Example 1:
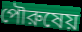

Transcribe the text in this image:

পৌরুষেয়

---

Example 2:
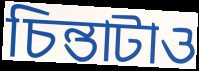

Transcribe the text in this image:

চিন্তাটাও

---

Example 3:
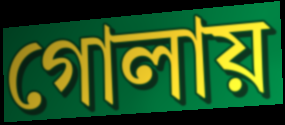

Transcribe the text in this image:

গোলায়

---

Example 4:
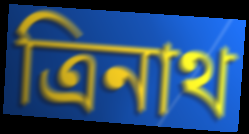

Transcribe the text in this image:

ত্রিনাথ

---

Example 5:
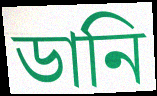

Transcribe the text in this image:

ডানি